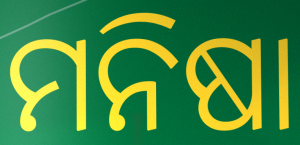
ମନିଷା